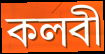
কলবী